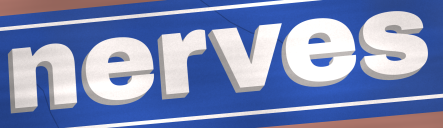
nerves